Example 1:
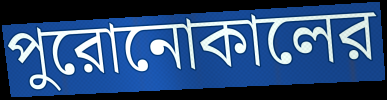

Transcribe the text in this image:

পুরোনোকালের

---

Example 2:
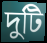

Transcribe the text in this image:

দুটি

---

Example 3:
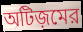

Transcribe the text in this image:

অটিজ়মের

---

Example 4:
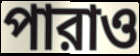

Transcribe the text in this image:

পারাও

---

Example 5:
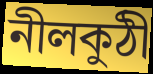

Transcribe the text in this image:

নীলকুঠী